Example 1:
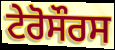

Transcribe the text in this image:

ਟੇਰੋਸੌਰਸ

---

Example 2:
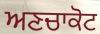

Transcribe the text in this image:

ਅਣਚਾਕੋਟ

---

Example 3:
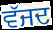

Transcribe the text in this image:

ਵੱਜਦ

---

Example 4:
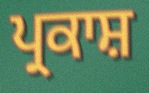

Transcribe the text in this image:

ਪ੍ਰਕਾਸ਼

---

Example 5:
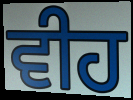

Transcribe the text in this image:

ਵੀਹ